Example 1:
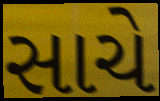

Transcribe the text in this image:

સાચે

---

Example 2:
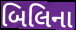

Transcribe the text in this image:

બિલિના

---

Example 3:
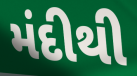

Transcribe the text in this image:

મંદીથી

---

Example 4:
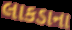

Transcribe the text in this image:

લાકડાના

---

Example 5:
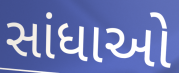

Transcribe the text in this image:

સાંધાઓ